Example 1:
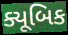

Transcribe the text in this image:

ક્યૂબિક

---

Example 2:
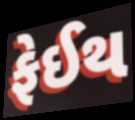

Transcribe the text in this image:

ફેઈથ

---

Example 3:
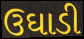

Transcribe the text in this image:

ઉઘાડી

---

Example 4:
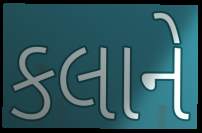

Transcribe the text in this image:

કલાને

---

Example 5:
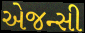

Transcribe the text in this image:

એજન્સી